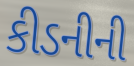
કીડનીની